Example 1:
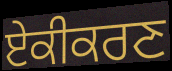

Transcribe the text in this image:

ਏਕੀਕਰਣ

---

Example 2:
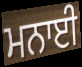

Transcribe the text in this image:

ਮਨਾਈ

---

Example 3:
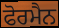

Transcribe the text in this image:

ਫੋਰਮੈਨ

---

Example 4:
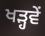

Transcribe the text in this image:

ਖੜ੍ਹਵੇਂ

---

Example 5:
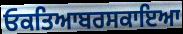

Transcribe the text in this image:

ਓਕਤਿਆਬਰਸਕਾਇਆ